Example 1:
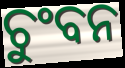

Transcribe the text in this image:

ଚୁଂବନ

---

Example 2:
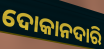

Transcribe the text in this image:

ଦୋକାନଦାରି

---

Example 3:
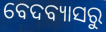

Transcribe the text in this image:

ବେଦବ୍ୟାସରୁ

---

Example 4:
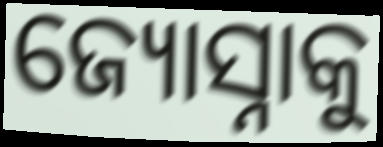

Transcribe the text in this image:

ଜ୍ୟୋସ୍ନାକୁ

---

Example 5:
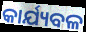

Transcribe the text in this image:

କାର୍ଯ୍ୟବଳ